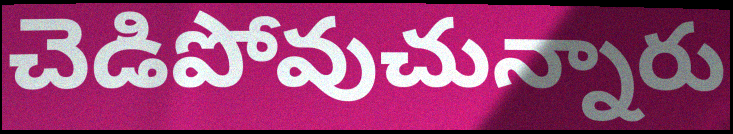
చెడిపోవుచున్నారు